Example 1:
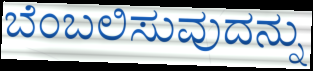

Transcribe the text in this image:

ಬೆಂಬಲಿಸುವುದನ್ನು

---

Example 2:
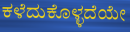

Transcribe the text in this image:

ಕಳೆದುಕೊಳ್ಳದೆಯೇ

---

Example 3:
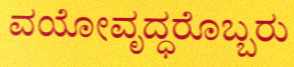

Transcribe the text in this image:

ವಯೋವೃದ್ಧರೊಬ್ಬರು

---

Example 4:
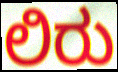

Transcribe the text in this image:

ಲಿರು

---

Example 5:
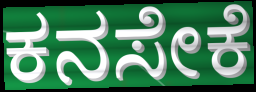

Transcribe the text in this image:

ಕನಸೇಕೆ